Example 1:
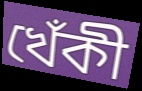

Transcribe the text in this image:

খেঁকী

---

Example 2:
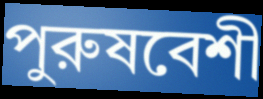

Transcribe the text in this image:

পুরুষবেশী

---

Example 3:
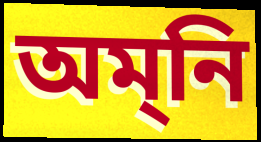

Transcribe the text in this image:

অম্‌নি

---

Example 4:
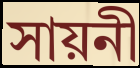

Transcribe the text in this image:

সায়নী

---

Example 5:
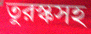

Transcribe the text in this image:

তুরস্কসহ